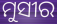
ମୁସୀର